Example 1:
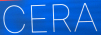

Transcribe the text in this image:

CERA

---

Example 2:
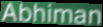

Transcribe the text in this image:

Abhiman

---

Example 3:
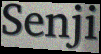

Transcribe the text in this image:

Senji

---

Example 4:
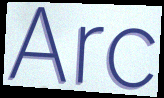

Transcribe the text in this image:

Arc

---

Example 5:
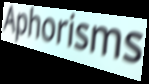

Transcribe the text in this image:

Aphorisms